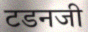
टडनजी